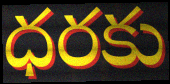
ధరకు